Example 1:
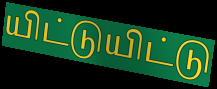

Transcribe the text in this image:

யிட்டுயிட்டு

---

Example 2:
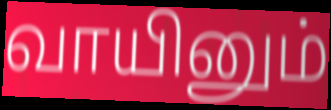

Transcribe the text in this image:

வாயினும்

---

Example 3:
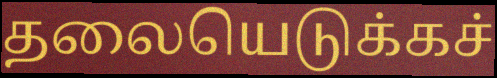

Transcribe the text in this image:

தலையெடுக்கச்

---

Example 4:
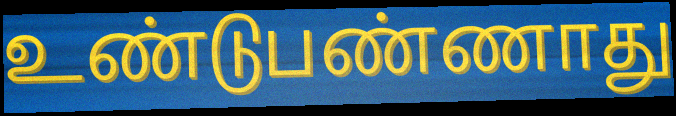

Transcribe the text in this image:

உண்டுபண்ணாது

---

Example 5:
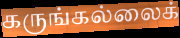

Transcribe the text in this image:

கருங்கல்லைக்